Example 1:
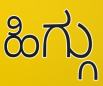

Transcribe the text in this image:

ಹಿಗ್ಗು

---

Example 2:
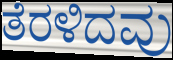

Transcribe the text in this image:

ತೆರಳಿದವು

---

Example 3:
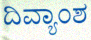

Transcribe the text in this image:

ದಿವ್ಯಾಂಶ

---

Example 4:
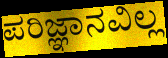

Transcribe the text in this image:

ಪರಿಜ್ಞಾನವಿಲ್ಲ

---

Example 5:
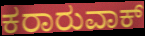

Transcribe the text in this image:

ಕರಾರುವಾಕ್